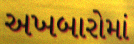
અખબારોમાં